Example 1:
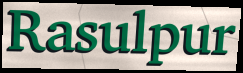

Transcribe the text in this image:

Rasulpur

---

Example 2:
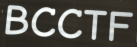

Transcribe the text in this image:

BCCTF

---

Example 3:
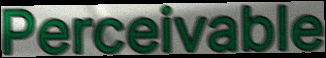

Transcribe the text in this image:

Perceivable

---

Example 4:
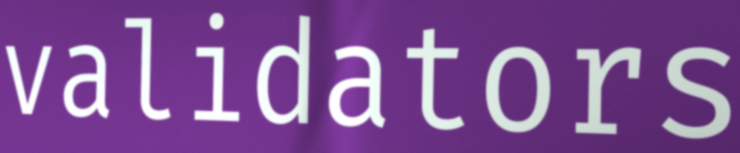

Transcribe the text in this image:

validators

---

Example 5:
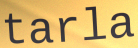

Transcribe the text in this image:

tarla